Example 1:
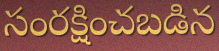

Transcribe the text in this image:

సంరక్షించబడిన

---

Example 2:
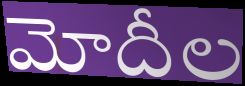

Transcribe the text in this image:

మోదీల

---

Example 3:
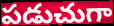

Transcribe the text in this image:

పడుచుగా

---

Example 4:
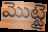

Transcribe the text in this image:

మొట్టై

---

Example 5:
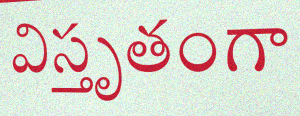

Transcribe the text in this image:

విస్తృతంగా